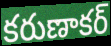
కరుణాకర్